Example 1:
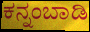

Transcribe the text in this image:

ಕನ್ನಂಬಾಡಿ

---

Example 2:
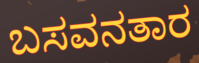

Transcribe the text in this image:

ಬಸವನತಾರ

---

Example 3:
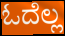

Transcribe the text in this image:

ಓದೆಲ್ಲ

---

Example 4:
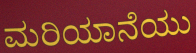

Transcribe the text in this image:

ಮರಿಯಾನೆಯು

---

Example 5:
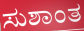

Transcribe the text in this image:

ಸುಶಾಂತ